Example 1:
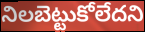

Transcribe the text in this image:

నిలబెట్టుకోలేదని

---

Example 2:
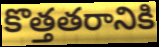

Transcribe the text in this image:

కొత్తతరానికి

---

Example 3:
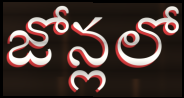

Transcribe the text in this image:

జోన్లలో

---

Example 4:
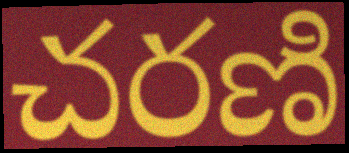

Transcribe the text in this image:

చరణి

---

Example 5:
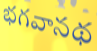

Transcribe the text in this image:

భగవానథ